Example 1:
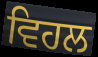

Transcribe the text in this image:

ਵਿਹਲ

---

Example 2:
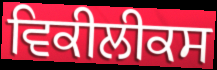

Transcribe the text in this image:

ਵਿਕੀਲੀਕਸ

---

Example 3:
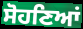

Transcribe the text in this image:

ਸੋਹਣਿਆਂ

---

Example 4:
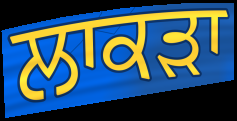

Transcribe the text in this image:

ਲਾਕੜਾ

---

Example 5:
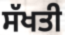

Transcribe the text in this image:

ਸੱਖਤੀ